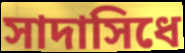
সাদাসিধে